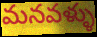
మనవళ్ళు